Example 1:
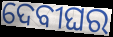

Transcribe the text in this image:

ଦେବୀଘର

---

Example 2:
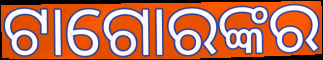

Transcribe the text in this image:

ଟାଗୋରଙ୍କର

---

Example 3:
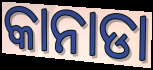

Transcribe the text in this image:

କାନାଡା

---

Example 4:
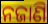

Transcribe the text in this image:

ନଜାଣି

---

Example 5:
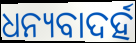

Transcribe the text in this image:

ଧନ୍ୟବାଦର୍ହ